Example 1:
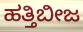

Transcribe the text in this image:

ಹತ್ತಿಬೀಜ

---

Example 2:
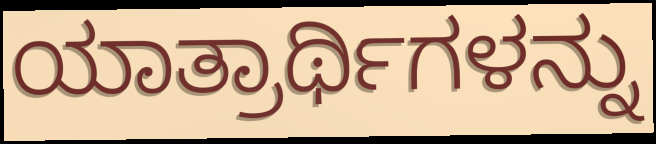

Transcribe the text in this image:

ಯಾತ್ರಾರ್ಥಿಗಳನ್ನು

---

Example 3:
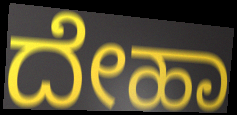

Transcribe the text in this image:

ದೇಹಾ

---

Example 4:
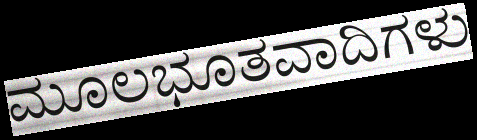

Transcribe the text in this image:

ಮೂಲಭೂತವಾದಿಗಳು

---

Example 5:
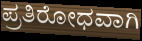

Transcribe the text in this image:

ಪ್ರತಿರೋಧವಾಗಿ